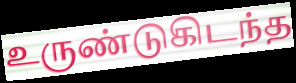
உருண்டுகிடந்த